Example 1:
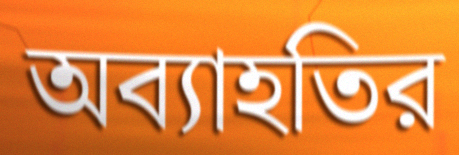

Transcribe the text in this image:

অব্যাহতির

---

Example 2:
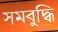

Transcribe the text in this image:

সমবুদ্ধি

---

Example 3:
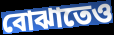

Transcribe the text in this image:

বোঝাতেও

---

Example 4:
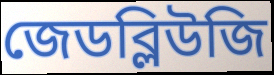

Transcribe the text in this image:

জেডব্লিউজি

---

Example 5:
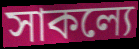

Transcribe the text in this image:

সাকল্যে